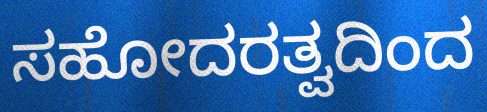
ಸಹೋದರತ್ವದಿಂದ